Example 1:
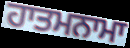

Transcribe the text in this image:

ਹਾਤਮਨਾਮਾ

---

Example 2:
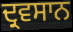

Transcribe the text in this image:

ਦ੍ਰਵਸਾਨ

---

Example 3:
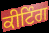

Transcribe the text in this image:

ਕੀਟਿੰਗ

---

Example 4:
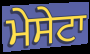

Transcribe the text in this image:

ਮੇਸੇਟਾ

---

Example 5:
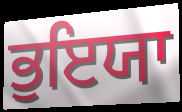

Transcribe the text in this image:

ਭੁਇਯਾ